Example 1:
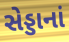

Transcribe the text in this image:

સેડ્ડાનાં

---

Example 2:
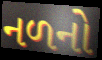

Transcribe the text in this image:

નળનો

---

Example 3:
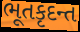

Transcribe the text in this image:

ભૂતકૃદન્ત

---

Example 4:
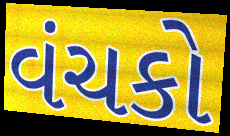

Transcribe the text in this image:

વંચકો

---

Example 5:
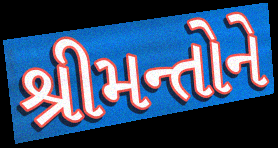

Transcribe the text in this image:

શ્રીમન્તોને